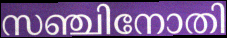
സഞ്ചിനോതി